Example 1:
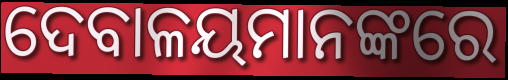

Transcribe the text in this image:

ଦେବାଳୟମାନଙ୍କରେ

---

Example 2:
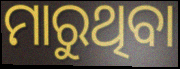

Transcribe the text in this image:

ମାରୁଥିବା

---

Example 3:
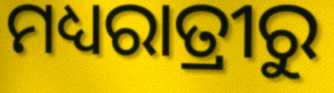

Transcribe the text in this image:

ମଧ୍ୟରାତ୍ରୀରୁ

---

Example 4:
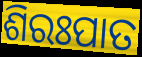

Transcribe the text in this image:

ଶିରଃପାତ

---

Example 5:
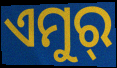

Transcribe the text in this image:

ଏମୁର୍